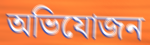
অভিযোজন